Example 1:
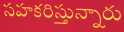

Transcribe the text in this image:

సహకరిస్తున్నారు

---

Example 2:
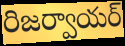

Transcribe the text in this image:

రిజర్వాయర్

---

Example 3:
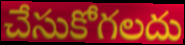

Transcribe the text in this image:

చేసుకోగలదు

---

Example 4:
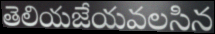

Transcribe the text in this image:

తెలియజేయవలసిన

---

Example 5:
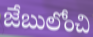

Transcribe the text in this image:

జేబులోంచి